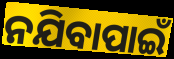
ନଯିବାପାଇଁ